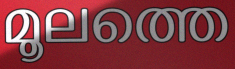
മൂലത്തെ